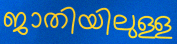
ജാതിയിലുള്ള